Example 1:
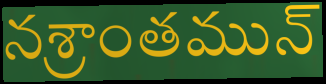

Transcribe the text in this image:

నశ్రాంతమున్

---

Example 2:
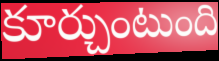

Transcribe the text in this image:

కూర్చుంటుంది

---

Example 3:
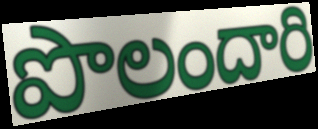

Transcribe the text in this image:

పొలందారి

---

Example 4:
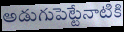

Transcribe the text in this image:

అడుగుపెట్టేనాటికి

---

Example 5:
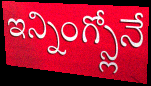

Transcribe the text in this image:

ఇన్నింగ్స్లోనే